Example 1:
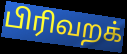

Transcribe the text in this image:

பிரிவறக்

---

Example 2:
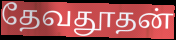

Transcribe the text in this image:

தேவதூதன்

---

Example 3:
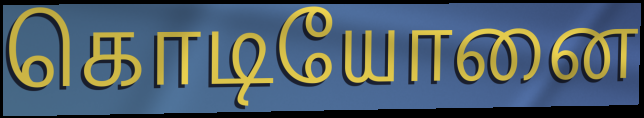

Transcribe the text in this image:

கொடியோனை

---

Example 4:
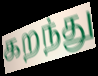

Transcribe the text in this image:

கறந்து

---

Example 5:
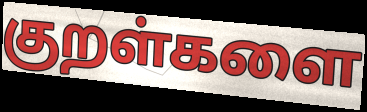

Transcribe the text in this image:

குறள்களை